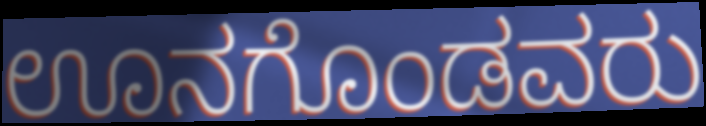
ಊನಗೊಂಡವರು